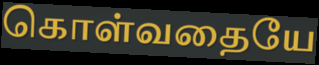
கொள்வதையே